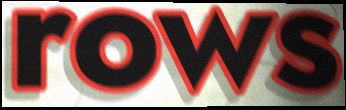
rows